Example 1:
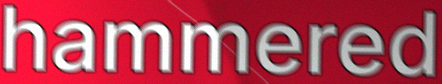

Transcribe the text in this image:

hammered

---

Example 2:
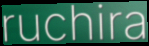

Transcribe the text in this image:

ruchira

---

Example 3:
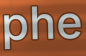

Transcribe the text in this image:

phe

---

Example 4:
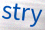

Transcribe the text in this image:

stry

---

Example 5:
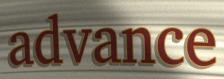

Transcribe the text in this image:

advance